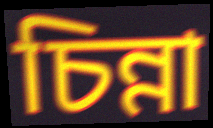
চিন্না